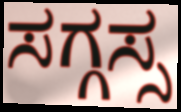
ಸಗ್ಗಸ್ಸ